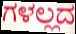
ಗಳಲ್ಲದ